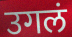
उगलं